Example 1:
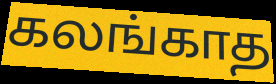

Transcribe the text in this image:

கலங்காத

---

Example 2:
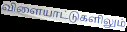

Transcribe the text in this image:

விளையாட்டுகளிலும்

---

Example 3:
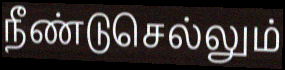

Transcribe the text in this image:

நீண்டுசெல்லும்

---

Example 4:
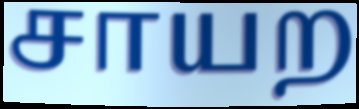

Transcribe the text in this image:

சாயற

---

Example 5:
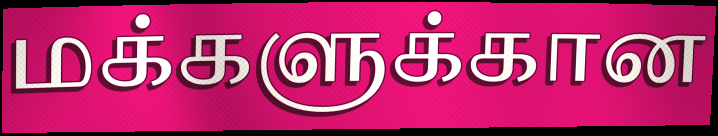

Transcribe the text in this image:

மக்களுக்கான